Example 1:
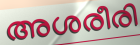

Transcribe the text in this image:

അശരീരി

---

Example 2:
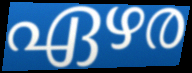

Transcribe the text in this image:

ഏഴര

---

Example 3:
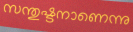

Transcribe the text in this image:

സന്തുഷ്ടനാണെന്നു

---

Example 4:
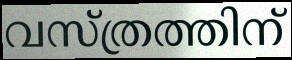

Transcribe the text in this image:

വസ്ത്രത്തിന്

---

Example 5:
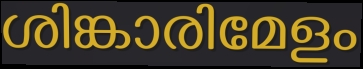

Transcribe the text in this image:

ശിങ്കാരിമേളം